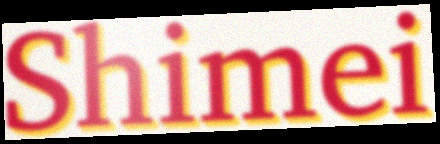
Shimei